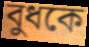
বুধকে